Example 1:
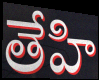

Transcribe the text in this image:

తేహి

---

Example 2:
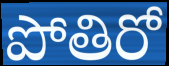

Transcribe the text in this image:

పోతిరో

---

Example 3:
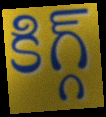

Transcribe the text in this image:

కిగ్గ్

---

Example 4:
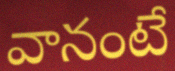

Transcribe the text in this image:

వానంటే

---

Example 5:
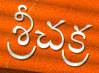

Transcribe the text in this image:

శ్రీచక్ర